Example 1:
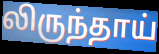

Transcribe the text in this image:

லிருந்தாய்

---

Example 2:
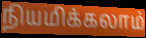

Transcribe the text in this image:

நியமிக்கலாம்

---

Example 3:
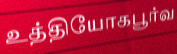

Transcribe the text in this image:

உத்தியோகபூர்வ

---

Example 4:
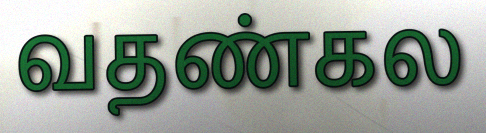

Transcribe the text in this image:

வதண்கல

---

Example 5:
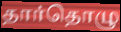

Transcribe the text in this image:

தார்தொழு